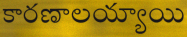
కారణాలయ్యాయి